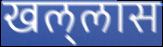
खल्लास